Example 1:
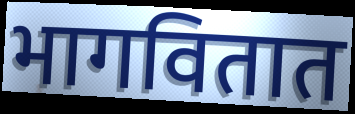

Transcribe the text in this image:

भागवितात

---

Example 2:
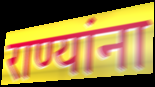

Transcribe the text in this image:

राण्यांना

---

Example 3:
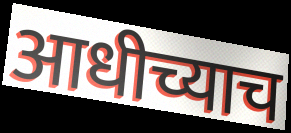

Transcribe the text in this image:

आधीच्याच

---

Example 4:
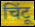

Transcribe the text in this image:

चिंटू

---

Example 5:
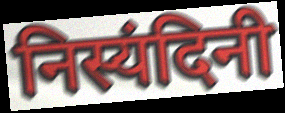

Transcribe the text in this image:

निस्यंदिनी